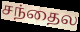
சந்தைல